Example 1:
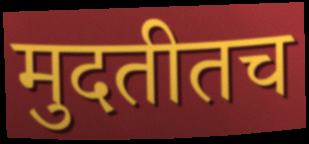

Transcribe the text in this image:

मुदतीतच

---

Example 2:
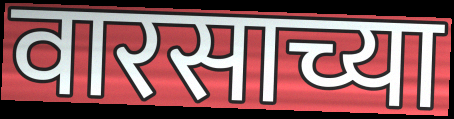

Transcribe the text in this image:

वारसाच्या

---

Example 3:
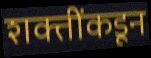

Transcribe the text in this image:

शक्तींकडून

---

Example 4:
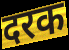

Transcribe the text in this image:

दरक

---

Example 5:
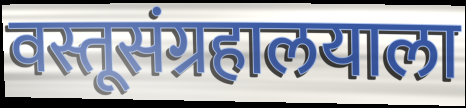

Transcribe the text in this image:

वस्तूसंग्रहालयाला